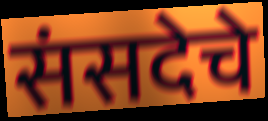
संसदेचे